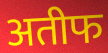
अतीफ